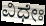
ವಿಧೇಃ